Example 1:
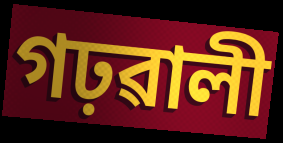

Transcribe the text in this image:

গঢ়ৱালী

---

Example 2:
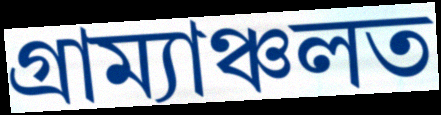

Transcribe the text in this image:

গ্ৰাম্যাঞ্চলত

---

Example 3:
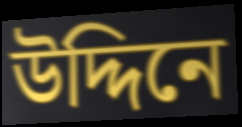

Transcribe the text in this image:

উদ্দিনে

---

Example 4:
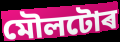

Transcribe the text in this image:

মৌলটোৰ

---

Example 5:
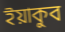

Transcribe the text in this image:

ইয়াকুব